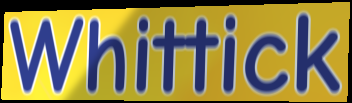
Whittick